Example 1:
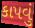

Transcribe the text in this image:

કાપવું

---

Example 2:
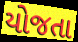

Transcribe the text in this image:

યોજતા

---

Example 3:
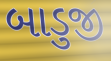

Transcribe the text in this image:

બાડુજી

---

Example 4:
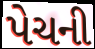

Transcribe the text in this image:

પેચની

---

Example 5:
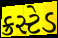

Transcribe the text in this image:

ક્રસ્ટેડ